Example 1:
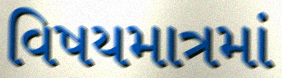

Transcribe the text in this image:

વિષયમાત્રમાં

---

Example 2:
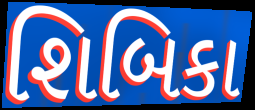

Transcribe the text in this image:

શિબિકા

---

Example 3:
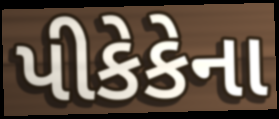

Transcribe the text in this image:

પીકેકેના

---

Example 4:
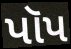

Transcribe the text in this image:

પૉપ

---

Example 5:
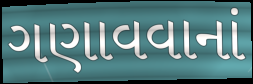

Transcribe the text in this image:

ગણાવવાનાં